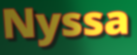
Nyssa